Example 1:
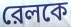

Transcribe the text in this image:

রেলকে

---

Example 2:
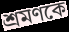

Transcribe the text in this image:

শ্রমণকে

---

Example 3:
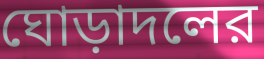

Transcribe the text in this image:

ঘোড়াদলের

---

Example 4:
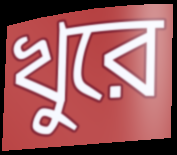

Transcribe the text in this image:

খুরে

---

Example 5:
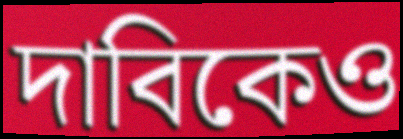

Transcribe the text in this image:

দাবিকেও